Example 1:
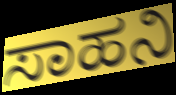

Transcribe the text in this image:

ಸಾಹನಿ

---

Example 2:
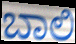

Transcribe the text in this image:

ಬಾಲಿ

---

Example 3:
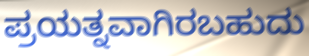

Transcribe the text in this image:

ಪ್ರಯತ್ನವಾಗಿರಬಹುದು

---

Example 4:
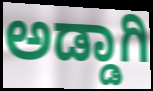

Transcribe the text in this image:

ಅಡ್ಡಾಗಿ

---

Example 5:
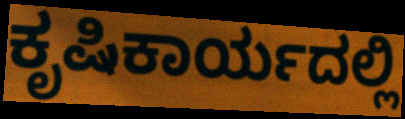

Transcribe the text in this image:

ಕೃಷಿಕಾರ್ಯದಲ್ಲಿ